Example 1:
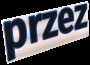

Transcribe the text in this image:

przez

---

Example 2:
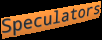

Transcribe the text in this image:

Speculators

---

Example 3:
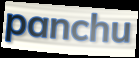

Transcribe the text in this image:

panchu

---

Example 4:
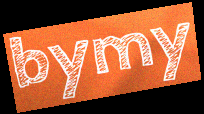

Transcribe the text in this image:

bymy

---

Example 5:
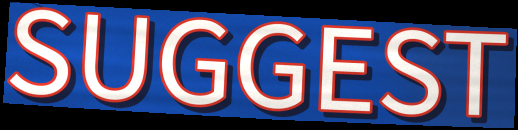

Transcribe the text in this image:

SUGGEST